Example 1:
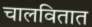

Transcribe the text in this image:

चालवितात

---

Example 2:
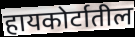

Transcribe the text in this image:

हायकोर्टातील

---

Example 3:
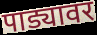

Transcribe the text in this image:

पाड्यावर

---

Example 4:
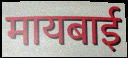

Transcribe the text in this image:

मायबाई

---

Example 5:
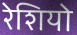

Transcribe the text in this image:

रेशियो